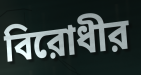
বিরোধীর